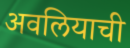
अवलियाची